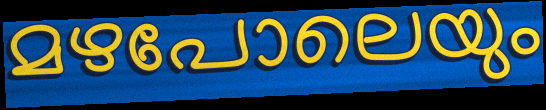
മഴപോലെയും